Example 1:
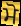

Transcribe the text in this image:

ਮੋ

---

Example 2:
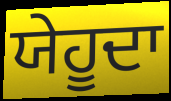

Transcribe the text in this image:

ਯੇਹੂਦਾ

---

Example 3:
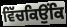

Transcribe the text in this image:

ਵਿੱਚਕਿਉਂਕਿ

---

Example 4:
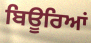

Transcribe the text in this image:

ਬਿਊਰਿਆਂ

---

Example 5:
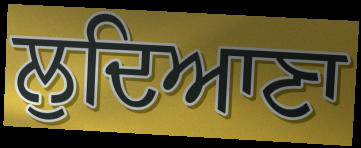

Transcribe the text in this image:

ਲੁਦਿਆਣਾ